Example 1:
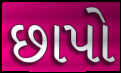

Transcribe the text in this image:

છાપો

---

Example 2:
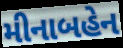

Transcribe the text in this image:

મીનાબહેન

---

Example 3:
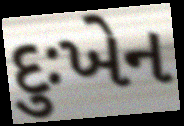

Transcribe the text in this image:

દુઃખેન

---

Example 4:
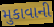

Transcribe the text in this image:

મુકાવાની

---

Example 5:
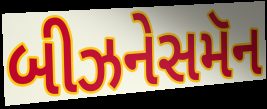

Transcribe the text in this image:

બીઝનેસમૅન